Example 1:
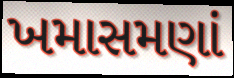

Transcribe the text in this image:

ખમાસમણાં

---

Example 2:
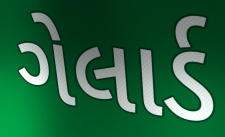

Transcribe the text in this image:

ગેલાર્ડ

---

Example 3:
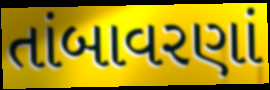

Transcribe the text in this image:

તાંબાવરણાં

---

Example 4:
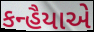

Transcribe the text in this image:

કન્હૈયાએ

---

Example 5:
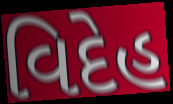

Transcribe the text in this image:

વિદેહ